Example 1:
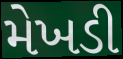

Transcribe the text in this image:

મેખડી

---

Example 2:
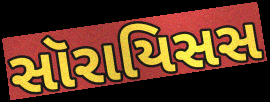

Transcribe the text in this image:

સૉરાયિસસ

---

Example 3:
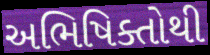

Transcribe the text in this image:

અભિષિક્તોથી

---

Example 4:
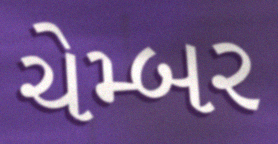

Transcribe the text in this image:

ચેમ્બર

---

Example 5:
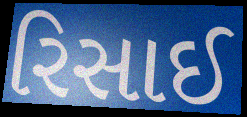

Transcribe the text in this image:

રિસાઈ